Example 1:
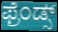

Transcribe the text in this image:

ಫ್ರೆಂಡ್ಸ್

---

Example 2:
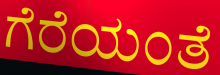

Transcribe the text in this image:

ಗೆರೆಯಂತೆ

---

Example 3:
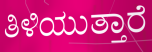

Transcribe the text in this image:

ತಿಳಿಯುತ್ತಾರೆ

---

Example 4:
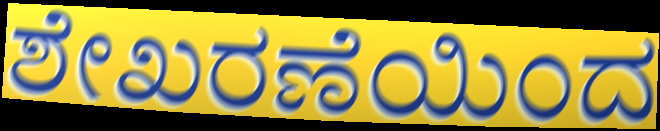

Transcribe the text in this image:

ಶೇಖರಣೆಯಿಂದ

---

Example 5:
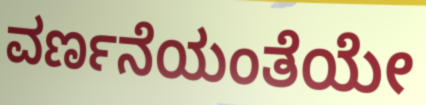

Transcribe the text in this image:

ವರ್ಣನೆಯಂತೆಯೇ